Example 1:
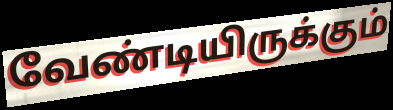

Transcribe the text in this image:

வேண்டியிருக்கும்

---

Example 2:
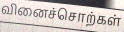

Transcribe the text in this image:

வினைச்சொற்கள்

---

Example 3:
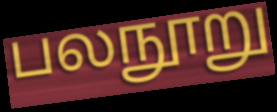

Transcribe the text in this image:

பலநூறு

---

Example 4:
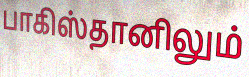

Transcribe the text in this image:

பாகிஸ்தானிலும்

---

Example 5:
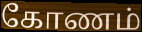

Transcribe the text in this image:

கோணம்